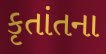
કૃતાંતના